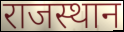
राजस्थान